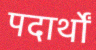
पदार्थों